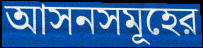
আসনসমূহের